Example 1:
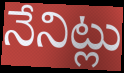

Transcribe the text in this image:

నేనిట్లు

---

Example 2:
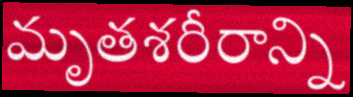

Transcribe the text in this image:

మృతశరీరాన్ని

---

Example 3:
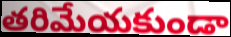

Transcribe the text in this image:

తరిమేయకుండా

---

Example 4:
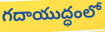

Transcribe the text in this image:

గదాయుద్ధంలో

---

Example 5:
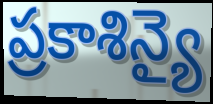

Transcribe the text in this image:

ప్రకాశిన్యై